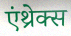
एंथ्रेक्स